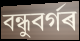
বন্ধুবৰ্গৰ